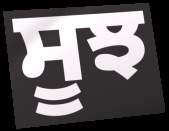
ਸੂਝ